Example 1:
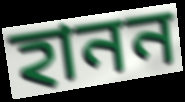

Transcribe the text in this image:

হানন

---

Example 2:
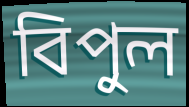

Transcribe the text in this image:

বিপুল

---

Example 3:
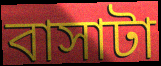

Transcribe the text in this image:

বাসাটা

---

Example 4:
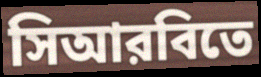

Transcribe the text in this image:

সিআরবিতে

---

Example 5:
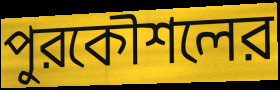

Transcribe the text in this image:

পুরকৌশলের